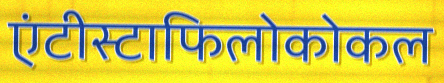
एंटीस्टाफिलोकोकल